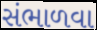
સંભાળવા